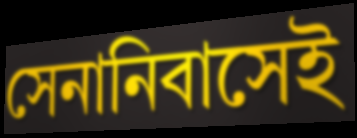
সেনানিবাসেই